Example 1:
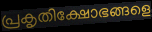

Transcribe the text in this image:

പ്രകൃതിക്ഷോഭങ്ങളെ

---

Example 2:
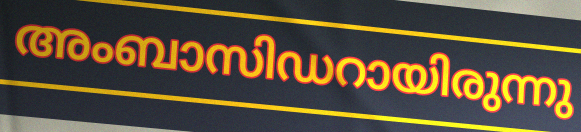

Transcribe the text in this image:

അംബാസിഡറായിരുന്നു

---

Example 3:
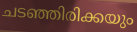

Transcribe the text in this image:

ചടഞ്ഞിരിക്കയും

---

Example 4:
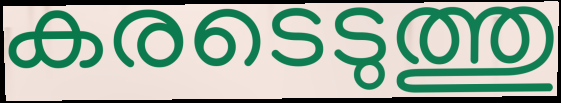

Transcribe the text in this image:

കരടെടുത്തു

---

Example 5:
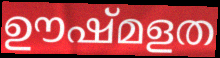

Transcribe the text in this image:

ഊഷ്മളത